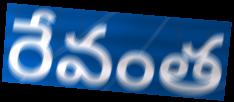
రేవంత